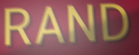
RAND